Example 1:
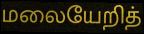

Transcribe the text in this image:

மலையேறித்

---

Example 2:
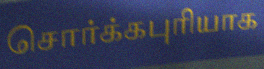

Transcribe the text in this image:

சொர்க்கபுரியாக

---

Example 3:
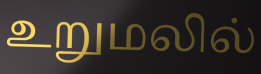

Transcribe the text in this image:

உறுமலில்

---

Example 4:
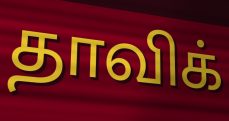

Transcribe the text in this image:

தாவிக்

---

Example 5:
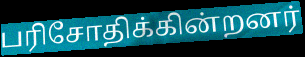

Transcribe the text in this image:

பரிசோதிக்கின்றனர்